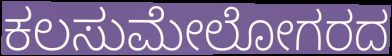
ಕಲಸುಮೇಲೋಗರದ